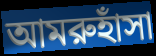
আমরুহাঁসা